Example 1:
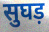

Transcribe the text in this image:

सुघड़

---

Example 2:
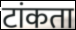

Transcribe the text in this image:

टांकता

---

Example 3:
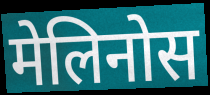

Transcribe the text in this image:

मेलिनोस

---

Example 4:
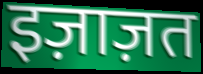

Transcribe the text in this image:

इज़ाज़त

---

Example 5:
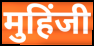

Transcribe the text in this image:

मुहिंजी